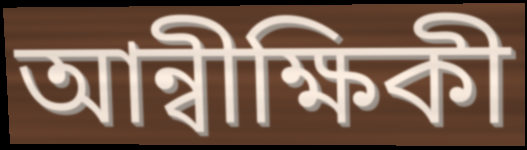
আন্বীক্ষিকী